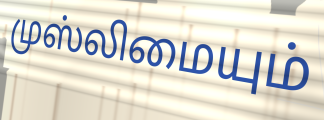
முஸ்லிமையும்